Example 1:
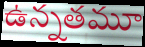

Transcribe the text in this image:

ఉన్నతమూ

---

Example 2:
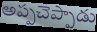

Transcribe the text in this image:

అప్పచెప్పాడు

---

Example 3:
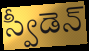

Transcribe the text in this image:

స్వీడెన్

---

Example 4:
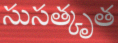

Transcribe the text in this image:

సుసత్కృత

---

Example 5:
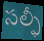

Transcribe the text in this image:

సల్ఫీ